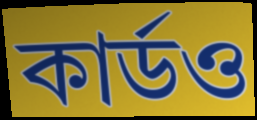
কার্ডও